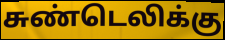
சுண்டெலிக்கு